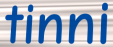
tinni